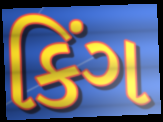
કિંગ